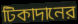
টিকাদানের